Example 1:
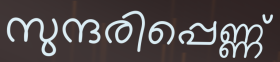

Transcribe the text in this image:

സുന്ദരിപ്പെണ്ണ്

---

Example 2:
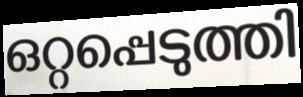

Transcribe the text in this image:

ഒറ്റപ്പെടുത്തി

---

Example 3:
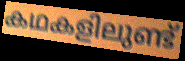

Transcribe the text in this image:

കഥകളിലുണ്ട്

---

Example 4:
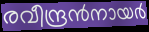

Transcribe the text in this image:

രവീന്ദ്രൻനായർ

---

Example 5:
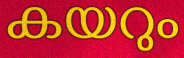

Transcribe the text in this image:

കയറും